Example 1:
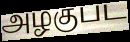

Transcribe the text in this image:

அழகுபட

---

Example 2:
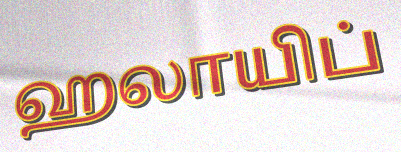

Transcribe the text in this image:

ஹலாயிப்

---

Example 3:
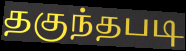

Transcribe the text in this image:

தகுந்தபடி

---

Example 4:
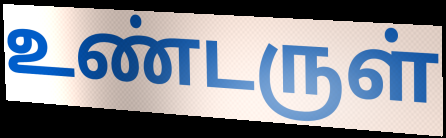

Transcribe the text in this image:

உண்டருள்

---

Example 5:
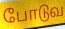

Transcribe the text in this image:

போடுவ